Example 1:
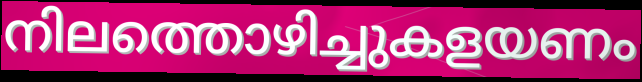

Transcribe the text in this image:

നിലത്തൊഴിച്ചുകളയണം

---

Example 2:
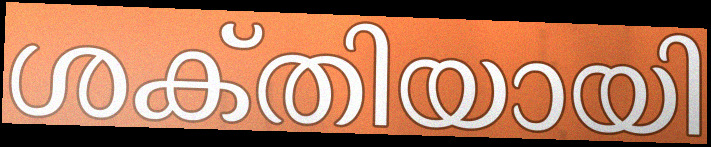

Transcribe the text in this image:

ശക്‌തിയായി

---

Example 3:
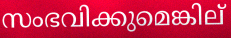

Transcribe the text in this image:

സംഭവിക്കുമെങ്കില്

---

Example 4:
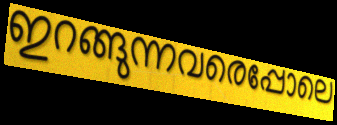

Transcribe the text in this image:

ഇറങ്ങുന്നവരെപ്പോലെ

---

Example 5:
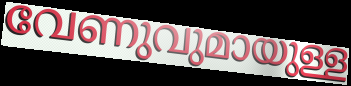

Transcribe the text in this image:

വേണുവുമായുള്ള